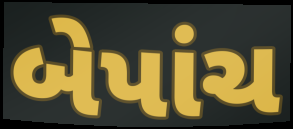
બેપાંચ